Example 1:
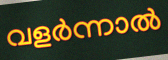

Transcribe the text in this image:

വളർന്നാൽ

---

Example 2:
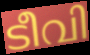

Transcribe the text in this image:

ടീവി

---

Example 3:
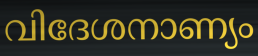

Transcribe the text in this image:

വിദേശനാണ്യം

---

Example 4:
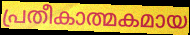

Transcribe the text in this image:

പ്രതീകാത്മകമായ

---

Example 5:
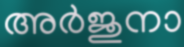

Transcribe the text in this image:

അർജുനാ